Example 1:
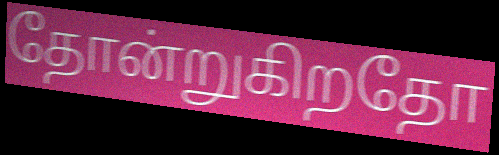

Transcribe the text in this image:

தோன்றுகிறதோ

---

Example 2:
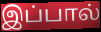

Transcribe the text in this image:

இப்பால்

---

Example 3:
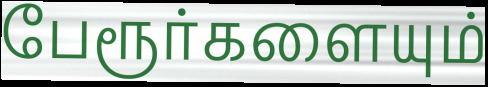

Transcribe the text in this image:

பேரூர்களையும்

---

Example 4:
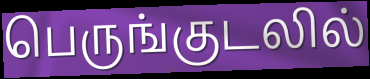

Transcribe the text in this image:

பெருங்குடலில்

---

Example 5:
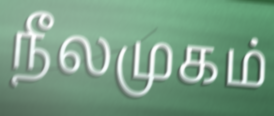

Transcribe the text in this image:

நீலமுகம்